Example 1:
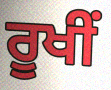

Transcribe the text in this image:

ਰੂਖੀਂ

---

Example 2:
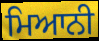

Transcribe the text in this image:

ਮਿਆਨੀ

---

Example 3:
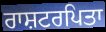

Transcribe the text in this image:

ਰਾਸ਼ਟਰਪਿਤਾ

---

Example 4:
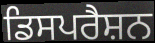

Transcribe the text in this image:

ਡਿਸਪਰੈਸ਼ਨ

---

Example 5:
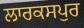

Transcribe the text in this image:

ਲਾਰਕਸਪੁਰ